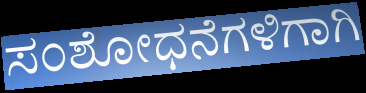
ಸಂಶೋಧನೆಗಳಿಗಾಗಿ